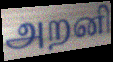
அறனி